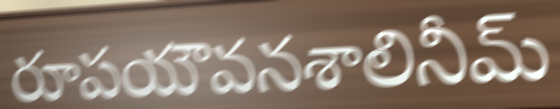
రూపయౌవనశాలినీమ్